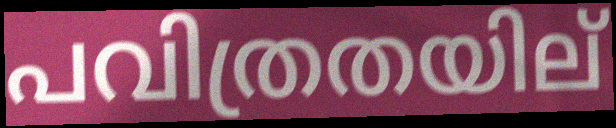
പവിത്രതയില്